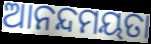
ଆନନ୍ଦମୟତା